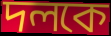
দলকে